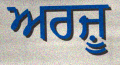
ਅਰਜ਼ੂ